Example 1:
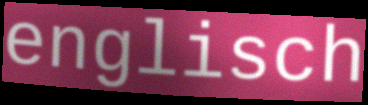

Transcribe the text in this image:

englisch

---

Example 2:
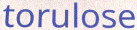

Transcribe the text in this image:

torulose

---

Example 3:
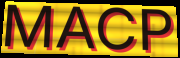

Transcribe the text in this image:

MACP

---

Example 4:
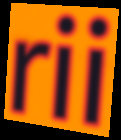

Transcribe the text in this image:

rii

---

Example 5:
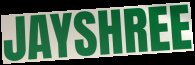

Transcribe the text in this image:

JAYSHREE